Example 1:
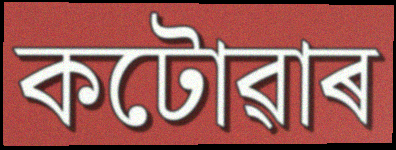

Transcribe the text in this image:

কটোৱাৰ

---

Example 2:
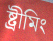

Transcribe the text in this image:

ষ্ট্ৰীমিং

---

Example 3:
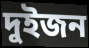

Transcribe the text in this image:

দুইজন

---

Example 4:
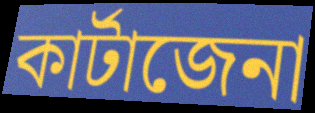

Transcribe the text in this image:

কাৰ্টাজেনা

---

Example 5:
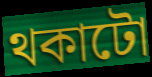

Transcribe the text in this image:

থকাটো